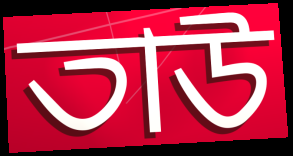
তাউ